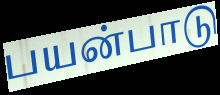
பயன்பாடு